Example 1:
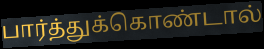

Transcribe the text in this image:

பார்த்துக்கொண்டால்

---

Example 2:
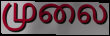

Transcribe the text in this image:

முலை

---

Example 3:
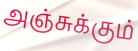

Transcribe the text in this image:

அஞ்சுக்கும்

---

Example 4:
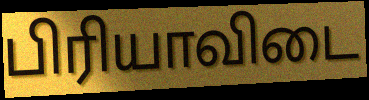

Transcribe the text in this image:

பிரியாவிடை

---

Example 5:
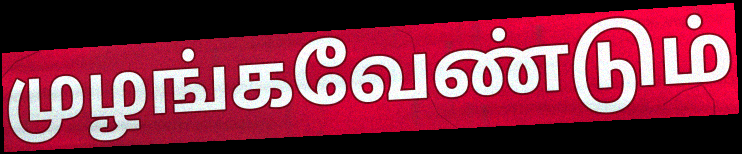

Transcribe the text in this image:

முழங்கவேண்டும்